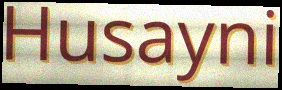
Husayni